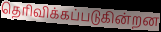
தெரிவிக்கப்படுகின்றன